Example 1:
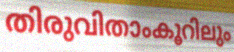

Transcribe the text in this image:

തിരുവിതാംകൂറിലും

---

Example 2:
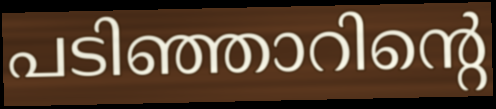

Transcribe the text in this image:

പടിഞ്ഞാറിന്റെ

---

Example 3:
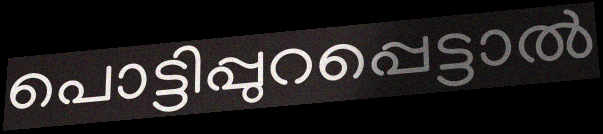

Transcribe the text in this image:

പൊട്ടിപ്പുറപ്പെട്ടാൽ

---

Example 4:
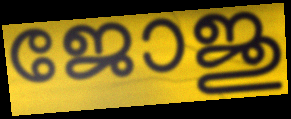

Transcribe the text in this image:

ജോജു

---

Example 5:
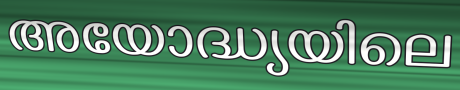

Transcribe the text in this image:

അയോദ്ധ്യയിലെ